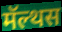
मॅल्थस